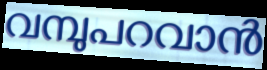
വമ്പുപറവാൻ